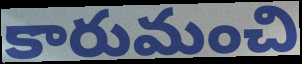
కారుమంచి